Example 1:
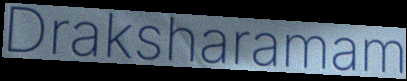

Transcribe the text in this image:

Draksharamam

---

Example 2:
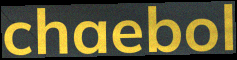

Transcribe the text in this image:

chaebol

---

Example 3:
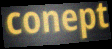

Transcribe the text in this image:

conept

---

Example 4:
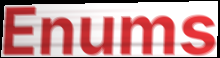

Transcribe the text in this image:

Enums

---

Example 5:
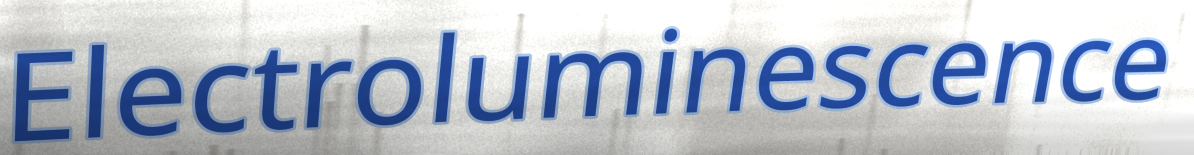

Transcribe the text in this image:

Electroluminescence